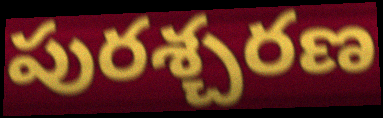
పురశ్చరణ